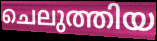
ചെലുത്തിയ